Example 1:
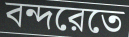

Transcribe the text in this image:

বন্দরেতে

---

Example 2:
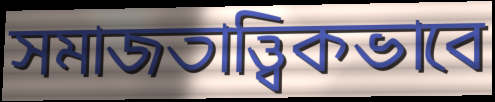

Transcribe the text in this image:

সমাজতাত্ত্বিকভাবে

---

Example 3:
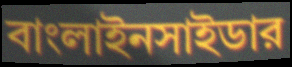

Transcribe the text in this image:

বাংলাইনসাইডার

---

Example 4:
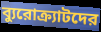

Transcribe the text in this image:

ব্যুরোক্র্যাটদের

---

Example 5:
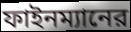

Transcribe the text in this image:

ফাইনম্যানের